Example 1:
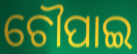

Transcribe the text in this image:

ଚୌପାଇ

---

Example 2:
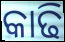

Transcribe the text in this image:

କାଢି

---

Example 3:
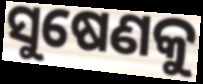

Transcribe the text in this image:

ସୁଷେଣକୁ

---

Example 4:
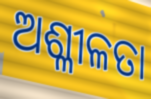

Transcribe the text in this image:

ଅଶ୍ଳୀଳତା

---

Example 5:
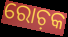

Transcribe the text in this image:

ରୋଚ଼କ